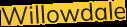
Willowdale